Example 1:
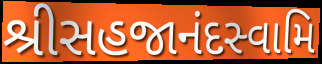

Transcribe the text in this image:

શ્રીસહજાનંદસ્વામિ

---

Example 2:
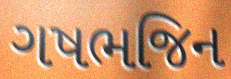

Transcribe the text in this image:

ગષભજિન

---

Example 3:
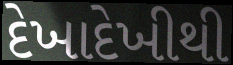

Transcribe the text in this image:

દેખાદેખીથી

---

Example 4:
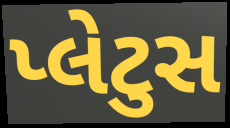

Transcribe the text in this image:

પ્લેટુસ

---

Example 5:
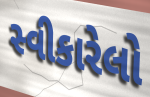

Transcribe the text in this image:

સ્વીકારેલો